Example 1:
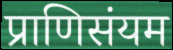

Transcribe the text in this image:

प्राणिसंयम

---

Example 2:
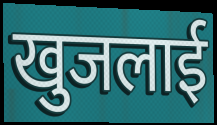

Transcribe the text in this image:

खुजलाई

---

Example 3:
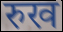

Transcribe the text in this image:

रुख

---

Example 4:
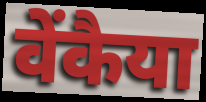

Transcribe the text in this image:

वेंकैया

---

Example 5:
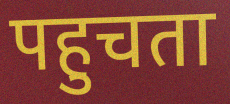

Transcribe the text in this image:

पहुचता